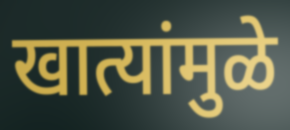
खात्यांमुळे